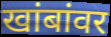
खांबांवर